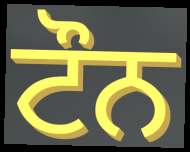
ਟੌਨ